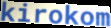
kirokom